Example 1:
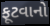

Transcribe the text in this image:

ફૂટવાનો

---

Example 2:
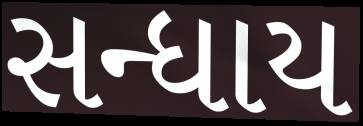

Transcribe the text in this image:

સન્ધાય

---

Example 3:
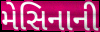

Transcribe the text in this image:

મેસિનાની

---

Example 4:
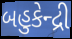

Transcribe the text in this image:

બહુકેન્દ્રી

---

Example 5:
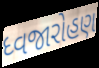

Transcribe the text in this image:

ધ્વજારોહણ